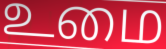
உமை